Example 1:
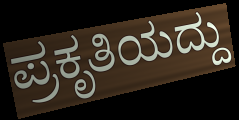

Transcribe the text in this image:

ಪ್ರಕೃತಿಯದ್ದು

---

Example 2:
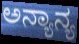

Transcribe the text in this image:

ಅನ್ಯಾನ್ಯ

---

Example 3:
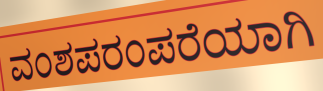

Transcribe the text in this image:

ವಂಶಪರಂಪರೆಯಾಗಿ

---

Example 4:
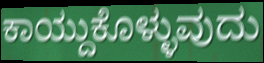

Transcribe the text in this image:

ಕಾಯ್ದುಕೊಳ್ಳುವುದು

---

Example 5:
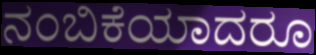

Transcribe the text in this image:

ನಂಬಿಕೆಯಾದರೂ